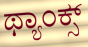
ಥ್ಯಾಂಕ್ಸ್